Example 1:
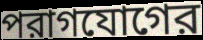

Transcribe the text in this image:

পরাগযোগের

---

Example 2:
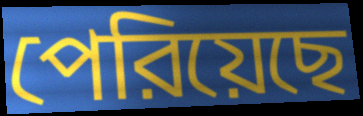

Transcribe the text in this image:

পেরিয়েছে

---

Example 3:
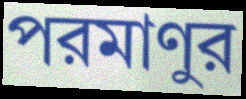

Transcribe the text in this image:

পরমাণুর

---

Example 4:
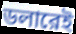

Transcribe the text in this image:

ডলারেই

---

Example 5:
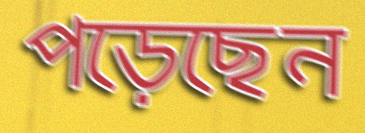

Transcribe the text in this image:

পড়েছেন